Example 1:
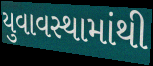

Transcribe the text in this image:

યુવાવસ્થામાંથી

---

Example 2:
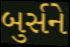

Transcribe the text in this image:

બુર્સને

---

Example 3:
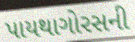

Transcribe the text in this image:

પાયથાગોરસની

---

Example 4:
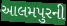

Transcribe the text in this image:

આલમપુરની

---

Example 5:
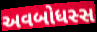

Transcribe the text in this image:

અવબોધસ્સ